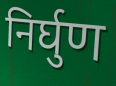
निर्घुण